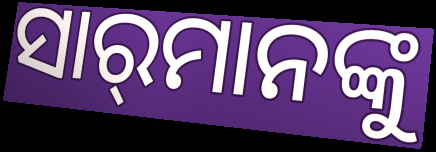
ସାର୍‌ମାନଙ୍କୁ